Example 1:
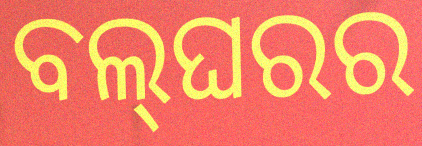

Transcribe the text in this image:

ବଲ୍‌ଘରର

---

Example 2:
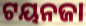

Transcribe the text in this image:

ଟୟନଜା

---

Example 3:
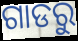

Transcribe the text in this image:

ଗାଡରୁ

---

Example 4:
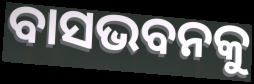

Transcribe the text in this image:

ବାସଭବନକୁ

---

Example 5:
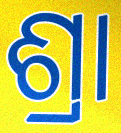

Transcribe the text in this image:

ଶ୍ରା